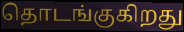
தொடங்குகிறது